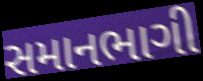
સમાનભાગી